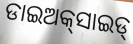
ଡାଇଅକ୍‌ସାଇଡ୍